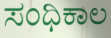
ಸಂಧಿಕಾಲ